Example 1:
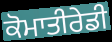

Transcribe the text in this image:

ਕੋਮਾਤੀਰੇਡੀ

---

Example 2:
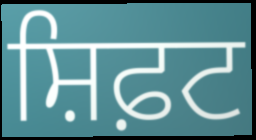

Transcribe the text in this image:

ਸ਼ਿਫ਼ਟ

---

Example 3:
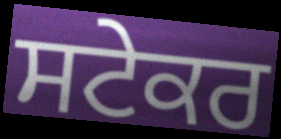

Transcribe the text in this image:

ਸਟੇਕਰ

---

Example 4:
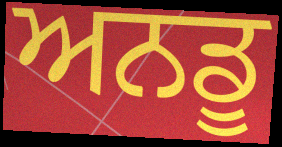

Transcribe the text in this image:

ਅਨਡੂ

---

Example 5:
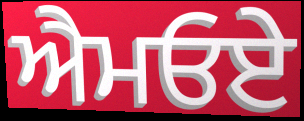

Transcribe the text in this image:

ਐਮਓਏ